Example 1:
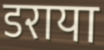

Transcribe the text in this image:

डराया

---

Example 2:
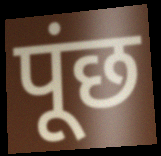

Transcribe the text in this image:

पूंछ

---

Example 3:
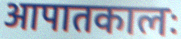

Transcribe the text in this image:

आपातकालः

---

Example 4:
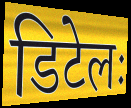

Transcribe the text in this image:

डिटेलः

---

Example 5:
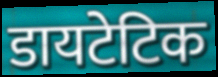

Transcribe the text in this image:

डायटेटिक